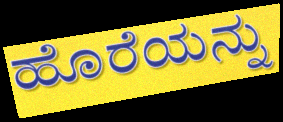
ಹೊರೆಯನ್ನು